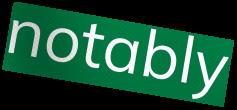
notably